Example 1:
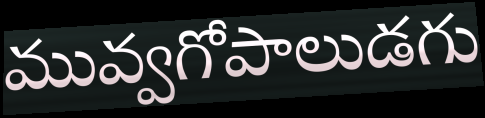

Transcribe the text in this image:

మువ్వగోపాలుడగు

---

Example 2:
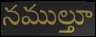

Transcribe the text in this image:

నముల్తూ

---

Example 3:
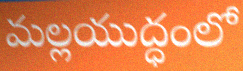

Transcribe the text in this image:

మల్లయుద్ధంలో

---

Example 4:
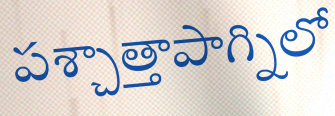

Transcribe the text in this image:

పశ్చాత్తాపాగ్నిలో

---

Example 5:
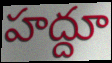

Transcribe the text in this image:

హద్దూ